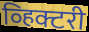
व्हिक्टरी